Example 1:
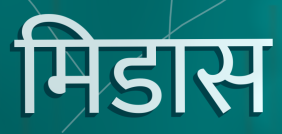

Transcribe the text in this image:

मिडास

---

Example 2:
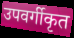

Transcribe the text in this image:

उपवर्गीकृत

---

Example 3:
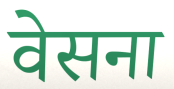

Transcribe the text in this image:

वेसना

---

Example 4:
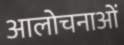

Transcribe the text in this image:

आलोचनाओं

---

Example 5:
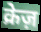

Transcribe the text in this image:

क्रेज़